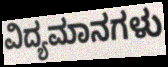
ವಿದ್ಯಮಾನಗಳು